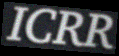
ICRR